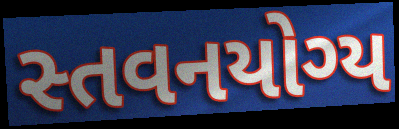
સ્તવનયોગ્ય